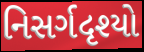
નિસર્ગદૃશ્યો